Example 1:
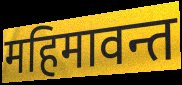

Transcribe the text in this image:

महिमावन्त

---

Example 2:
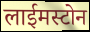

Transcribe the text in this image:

लाईमस्टोन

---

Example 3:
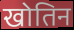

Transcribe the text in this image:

खोतिन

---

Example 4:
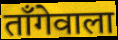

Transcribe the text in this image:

ताँगेवाला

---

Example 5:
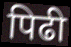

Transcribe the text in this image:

पिढी